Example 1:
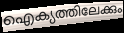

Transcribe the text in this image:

ഐക്യത്തിലേക്കും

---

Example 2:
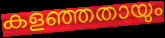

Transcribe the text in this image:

കളഞ്ഞതായും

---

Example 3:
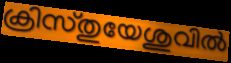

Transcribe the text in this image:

ക്രിസ്തുയേശുവിൽ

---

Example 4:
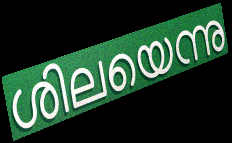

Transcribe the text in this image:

ശിലയെന്നു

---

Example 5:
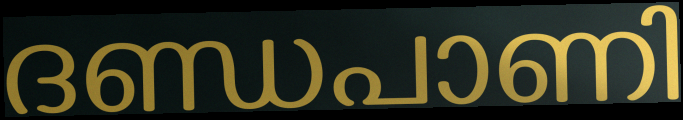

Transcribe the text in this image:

ദണ്ഡപാണി